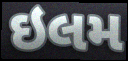
ઇલમ